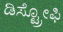
ಡಿಸ್ಟ್ರೋಫಿ